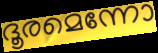
ദൂരമെന്നോ